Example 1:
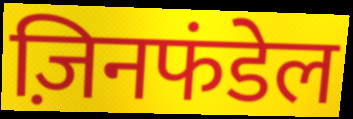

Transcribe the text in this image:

ज़िनफंडेल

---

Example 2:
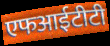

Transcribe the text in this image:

एफआईटीटी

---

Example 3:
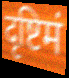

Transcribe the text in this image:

दृष्टिमं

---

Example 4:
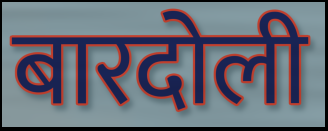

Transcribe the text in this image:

बारदोली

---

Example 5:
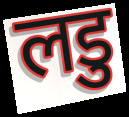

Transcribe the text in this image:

लडु